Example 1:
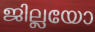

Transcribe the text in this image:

ജില്ലയോ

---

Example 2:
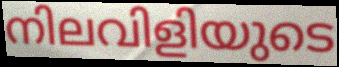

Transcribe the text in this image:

നിലവിളിയുടെ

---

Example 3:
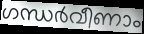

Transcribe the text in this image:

ഗന്ധർവീണാം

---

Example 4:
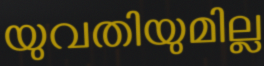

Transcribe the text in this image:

യുവതിയുമില്ല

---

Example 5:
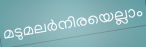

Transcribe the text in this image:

മടുമലർനിരയെല്ലാം